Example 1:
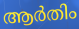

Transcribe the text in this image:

ആർതിം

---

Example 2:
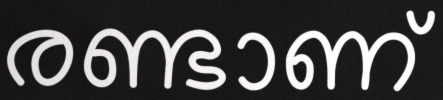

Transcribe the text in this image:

രണ്ടാണ്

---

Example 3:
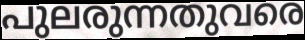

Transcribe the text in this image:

പുലരുന്നതുവരെ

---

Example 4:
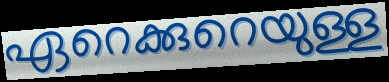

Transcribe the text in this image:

ഏറെക്കുറെയുള്ള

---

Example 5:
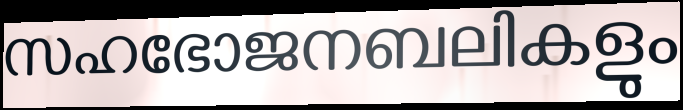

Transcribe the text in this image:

സഹഭോജനബലികളും